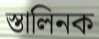
স্তালিনক